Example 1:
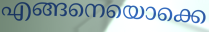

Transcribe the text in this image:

എങ്ങനെയൊക്കെ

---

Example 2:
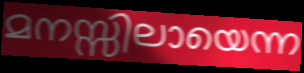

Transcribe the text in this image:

മനസ്സിലായെന്ന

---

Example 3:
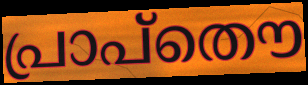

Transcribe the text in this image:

പ്രാപ്തൌ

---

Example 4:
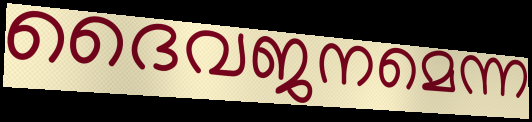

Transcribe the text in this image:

ദൈവജനമെന്ന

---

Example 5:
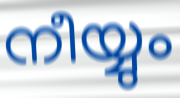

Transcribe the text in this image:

നീയ്യും